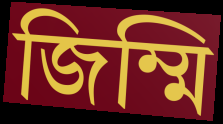
জিম্মি